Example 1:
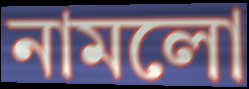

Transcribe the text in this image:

নামলো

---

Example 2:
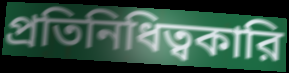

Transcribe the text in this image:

প্রতিনিধিত্বকারি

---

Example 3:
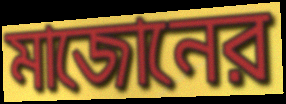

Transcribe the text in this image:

মাজোনের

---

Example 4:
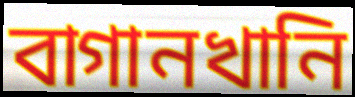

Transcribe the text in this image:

বাগানখানি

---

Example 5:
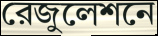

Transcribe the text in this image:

রেজুলেশনে